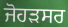
ਜੋਹੜਸਰ